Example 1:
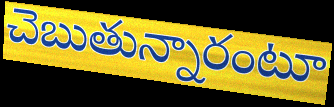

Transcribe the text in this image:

చెబుతున్నారంటూ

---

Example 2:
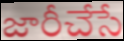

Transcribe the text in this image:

జారీచేసే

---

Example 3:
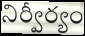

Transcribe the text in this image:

నిర్వీర్యం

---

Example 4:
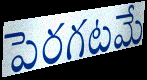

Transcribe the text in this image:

పెరగటమే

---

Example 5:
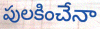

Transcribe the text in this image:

పులకించేనా